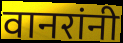
वानरांनी